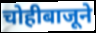
चोहीबाजूने